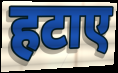
हटाए